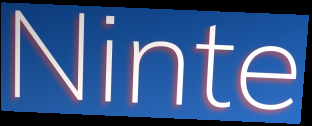
Ninte